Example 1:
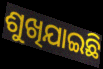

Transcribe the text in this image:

ଶୁଖିଯାଇଛି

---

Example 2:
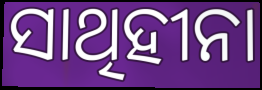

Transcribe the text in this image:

ସାଥିହୀନା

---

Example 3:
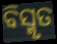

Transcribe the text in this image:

ବିସ୍ମୃତ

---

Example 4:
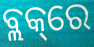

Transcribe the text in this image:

ବ୍ଲକ୍‌ରେ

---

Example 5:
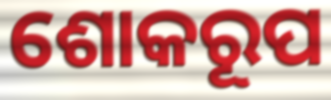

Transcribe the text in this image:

ଶୋକରୂପ